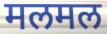
मलमल